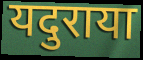
यदुराया